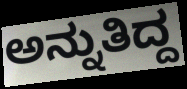
ಅನ್ನುತಿದ್ದ